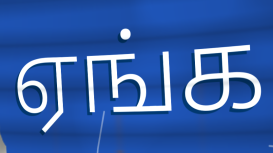
ஏங்க